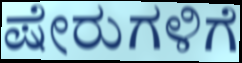
ಷೇರುಗಳಿಗೆ